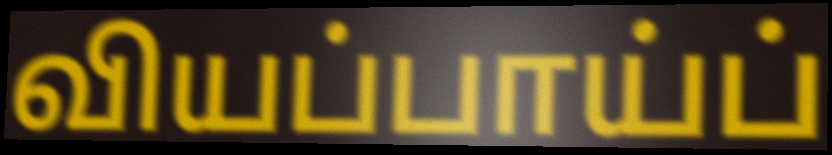
வியப்பாய்ப்